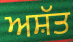
ਅਸ਼ੱਤ